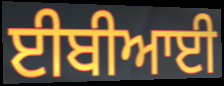
ਈਬੀਆਈ